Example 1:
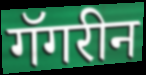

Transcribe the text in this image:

गॅगरीन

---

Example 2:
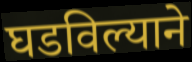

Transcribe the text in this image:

घडविल्याने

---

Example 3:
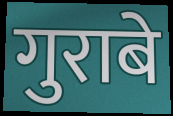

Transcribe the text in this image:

गुराबे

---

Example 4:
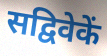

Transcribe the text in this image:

सद्विवेकें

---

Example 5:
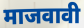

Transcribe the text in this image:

माजवावी